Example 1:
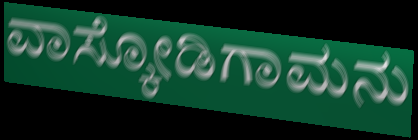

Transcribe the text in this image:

ವಾಸ್ಕೋಡಿಗಾಮನು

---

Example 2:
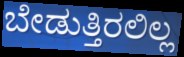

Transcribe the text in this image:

ಬೇಡುತ್ತಿರಲಿಲ್ಲ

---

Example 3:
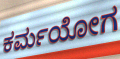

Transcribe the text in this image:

ಕರ್ಮಯೋಗ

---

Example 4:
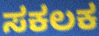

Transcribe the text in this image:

ಸಕಲಕ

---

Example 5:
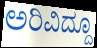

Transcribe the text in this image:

ಅರಿವಿದ್ದೂ